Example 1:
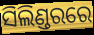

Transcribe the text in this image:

ସିଲିଣ୍ଡରରେ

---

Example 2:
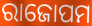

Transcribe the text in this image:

ରାଜୋପମ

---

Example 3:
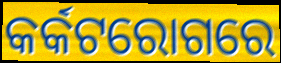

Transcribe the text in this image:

କର୍କଟରୋଗରେ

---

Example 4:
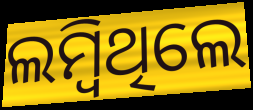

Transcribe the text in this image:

ଲମ୍ବିଥିଲେ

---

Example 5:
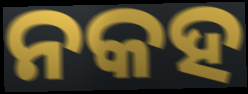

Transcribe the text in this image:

ନକହ